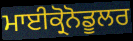
ਮਾਈਕ੍ਰੋਨੋਡੂਲਰ